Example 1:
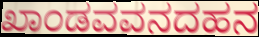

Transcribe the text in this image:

ಖಾಂಡವವನದಹನ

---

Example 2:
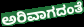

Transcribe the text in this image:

ಅರಿವಾಗದಂತೆ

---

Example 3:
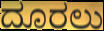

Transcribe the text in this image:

ದೂರಲು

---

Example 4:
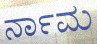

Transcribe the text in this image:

ರ್ನಾಮ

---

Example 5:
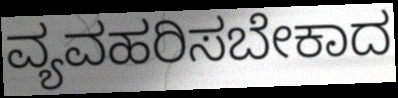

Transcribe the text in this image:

ವ್ಯವಹರಿಸಬೇಕಾದ